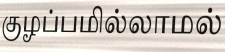
குழப்பமில்லாமல்